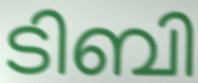
ടിബി